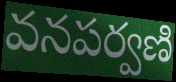
వనపర్వణి